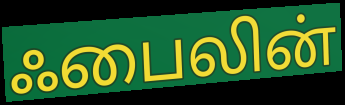
ஃபைலின்